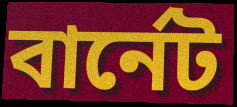
বার্নেট